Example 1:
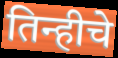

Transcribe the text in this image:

तिन्हीचे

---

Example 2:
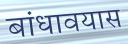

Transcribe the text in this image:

बांधावयास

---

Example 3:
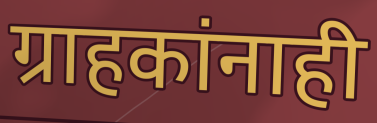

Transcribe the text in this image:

ग्राहकांनाही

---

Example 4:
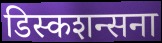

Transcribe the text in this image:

डिस्कशन्सना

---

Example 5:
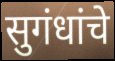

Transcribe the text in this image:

सुगंधांचे